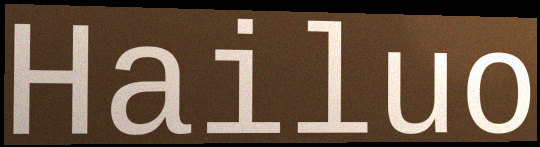
Hailuo